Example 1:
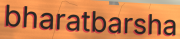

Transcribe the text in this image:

bharatbarsha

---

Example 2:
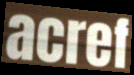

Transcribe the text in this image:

acref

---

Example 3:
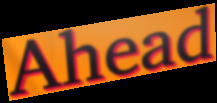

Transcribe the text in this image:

Ahead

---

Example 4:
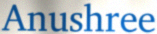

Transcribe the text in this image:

Anushree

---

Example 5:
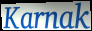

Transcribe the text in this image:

Karnak